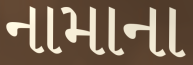
નામાના